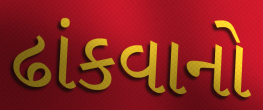
ઢાંકવાનો